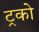
ट्रको